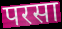
परसा